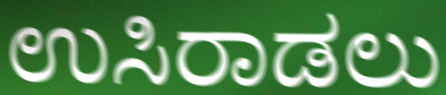
ಉಸಿರಾಡಲು